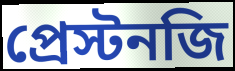
প্রেস্টনজি